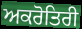
ਅਕਰੋਤਿਰੀ